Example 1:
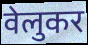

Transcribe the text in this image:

वेलुकर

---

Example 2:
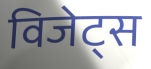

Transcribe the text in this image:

विजेट्स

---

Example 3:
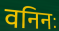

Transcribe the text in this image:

वनिनः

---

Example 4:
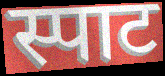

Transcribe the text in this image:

स्पाट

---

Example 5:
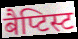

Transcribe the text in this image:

बैप्टिस्ट